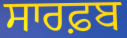
ਸਾਰਫ਼ਬ